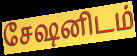
சேஷனிடம்